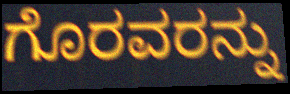
ಗೊರವರನ್ನು